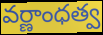
వర్ణాంధత్వ